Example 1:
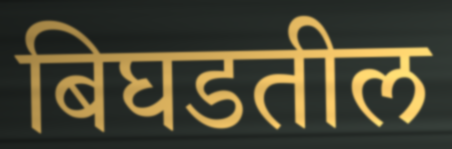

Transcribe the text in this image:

बिघडतील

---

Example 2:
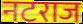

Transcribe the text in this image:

नटराज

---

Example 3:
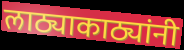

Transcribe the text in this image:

लाठ्याकाठ्यांनी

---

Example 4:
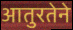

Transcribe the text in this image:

आतुरतेने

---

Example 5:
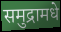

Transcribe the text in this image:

समुद्रामधे